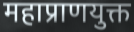
महाप्राणयुक्त